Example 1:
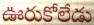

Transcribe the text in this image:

ఊరుకోలేడు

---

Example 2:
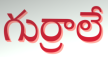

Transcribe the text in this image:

గుర్రాలే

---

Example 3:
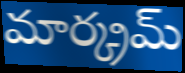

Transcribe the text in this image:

మార్క్రమ్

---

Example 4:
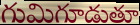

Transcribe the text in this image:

గుమిగూడుతూ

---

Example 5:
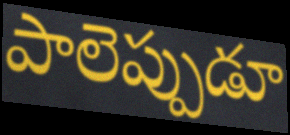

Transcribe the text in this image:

పాలెప్పుడూ